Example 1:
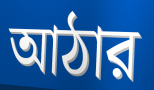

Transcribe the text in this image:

আঠার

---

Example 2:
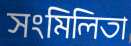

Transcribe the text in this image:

সংমিলিতা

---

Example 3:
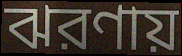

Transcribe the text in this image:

ঝরণায়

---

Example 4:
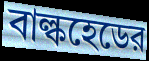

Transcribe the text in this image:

বাল্কহেডের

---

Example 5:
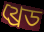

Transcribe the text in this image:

থ্রেড